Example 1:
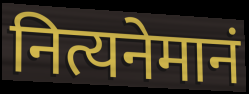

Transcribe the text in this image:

नित्यनेमानं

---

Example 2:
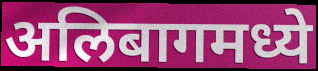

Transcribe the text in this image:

अलिबागमध्ये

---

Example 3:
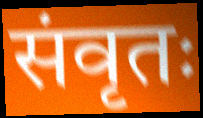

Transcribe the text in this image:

संवृतः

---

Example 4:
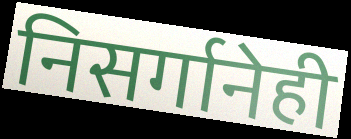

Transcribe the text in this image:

निसर्गानेही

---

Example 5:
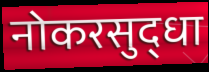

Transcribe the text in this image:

नोकरसुद्धा